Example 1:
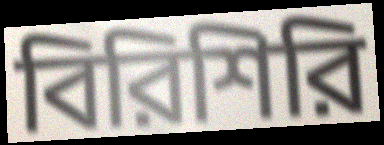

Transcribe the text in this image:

বিরিশিরি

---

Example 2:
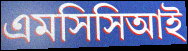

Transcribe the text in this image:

এমসিসিআই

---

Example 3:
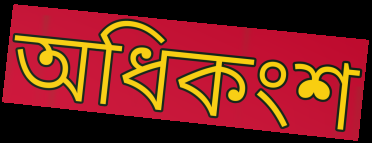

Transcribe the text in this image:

অধিকংশ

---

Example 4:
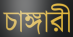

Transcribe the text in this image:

চাঙ্গারী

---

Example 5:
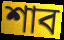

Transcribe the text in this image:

শাব